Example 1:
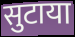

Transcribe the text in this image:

सुटाया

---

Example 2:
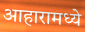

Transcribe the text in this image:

आहारामध्ये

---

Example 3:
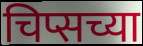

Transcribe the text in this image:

चिप्सच्या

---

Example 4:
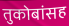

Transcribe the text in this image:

तुकोबांसह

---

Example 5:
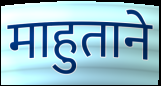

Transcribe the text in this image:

माहुताने